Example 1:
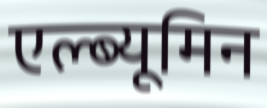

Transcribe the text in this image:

एल्ब्यूमिन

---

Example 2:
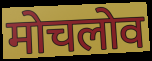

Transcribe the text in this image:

मोचलोव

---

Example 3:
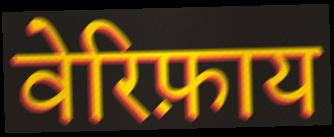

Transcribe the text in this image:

वेरिफ़ाय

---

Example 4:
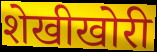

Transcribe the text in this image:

शेखीखोरी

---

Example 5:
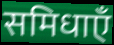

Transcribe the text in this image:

समिधाएँ